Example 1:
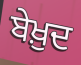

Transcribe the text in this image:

ਬੇਖ਼ੁਦ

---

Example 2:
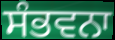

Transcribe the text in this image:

ਸੰਭਵਨਾ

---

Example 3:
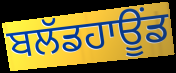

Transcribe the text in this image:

ਬਲੱਡਹਾਊਂਡ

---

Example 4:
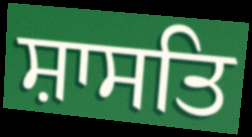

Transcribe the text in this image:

ਸ਼ਾਸਤਿ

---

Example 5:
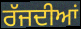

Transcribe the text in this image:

ਰੱਜਦੀਆਂ